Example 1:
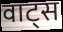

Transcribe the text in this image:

वाट्स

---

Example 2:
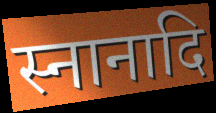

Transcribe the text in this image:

स्नानादि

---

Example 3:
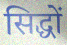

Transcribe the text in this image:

सिद्धों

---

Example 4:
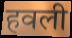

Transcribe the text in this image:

हवली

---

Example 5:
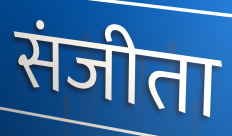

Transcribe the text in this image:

संजीता